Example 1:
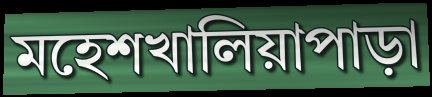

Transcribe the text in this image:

মহেশখালিয়াপাড়া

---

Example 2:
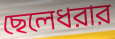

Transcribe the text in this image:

ছেলেধরার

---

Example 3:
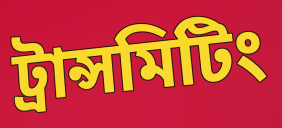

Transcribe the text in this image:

ট্রান্সমিটিং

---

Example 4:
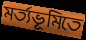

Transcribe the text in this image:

মর্ত্যভূমিতে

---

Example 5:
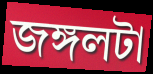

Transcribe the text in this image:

জঙ্গলটা